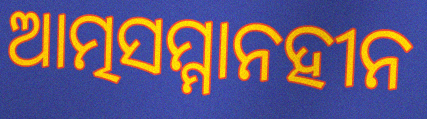
ଆତ୍ମସମ୍ମାନହୀନ